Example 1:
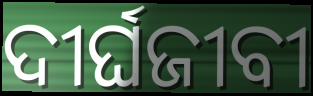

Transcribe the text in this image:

ଦୀର୍ଘଜୀବୀ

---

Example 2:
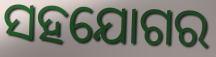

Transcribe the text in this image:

ସହଯୋଗର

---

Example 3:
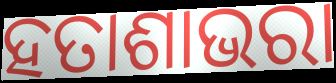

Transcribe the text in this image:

ହତାଶାଭରା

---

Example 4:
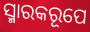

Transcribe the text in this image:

ସ୍ମାରକରୂପେ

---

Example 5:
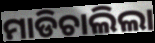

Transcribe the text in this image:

ମାଡିଚାଲିଲା